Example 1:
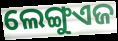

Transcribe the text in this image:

ଲେଙ୍ଗୁଏଜ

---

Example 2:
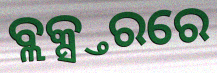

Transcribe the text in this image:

ବ୍ଲକ୍ସ୍ତରରେ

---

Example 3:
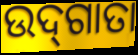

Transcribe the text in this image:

ଉଦ୍‌ଗାତା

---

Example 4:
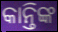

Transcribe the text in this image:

କାନ୍ତିଙ୍କ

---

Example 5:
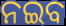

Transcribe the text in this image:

ନଇବ